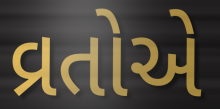
વ્રતોએ